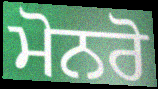
ਮੋਨਰੋ